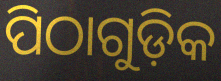
ପିଠାଗୁଡ଼ିକ